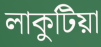
লাকুটিয়া